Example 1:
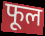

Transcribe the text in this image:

फूल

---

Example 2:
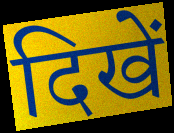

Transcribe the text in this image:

दिखें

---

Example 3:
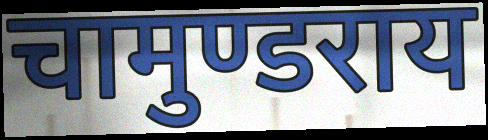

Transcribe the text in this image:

चामुण्डराय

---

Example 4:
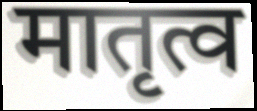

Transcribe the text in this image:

मातृत्व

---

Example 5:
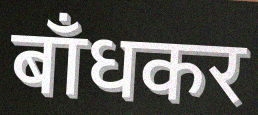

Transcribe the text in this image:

बाँधकर